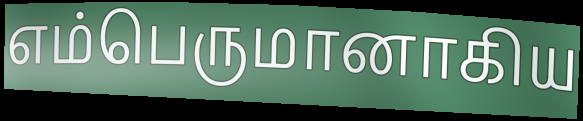
எம்பெருமானாகிய